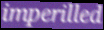
imperilled